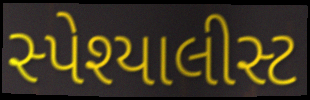
સ્પેશ્યાલીસ્ટ